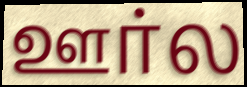
ஊர்ல